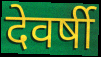
देवर्षी